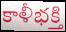
కాళీభక్తి